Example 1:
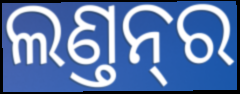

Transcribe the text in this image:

ଲଣ୍ତନ୍‌ର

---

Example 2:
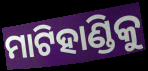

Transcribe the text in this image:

ମାଟିହାଣ୍ଡିକୁ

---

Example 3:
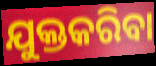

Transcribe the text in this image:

ଯୁକ୍ତକରିବା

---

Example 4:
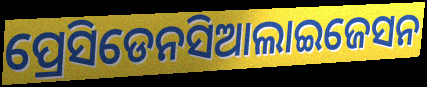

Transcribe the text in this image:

ପ୍ରେସିଡେନସିଆଲାଇଜେସନ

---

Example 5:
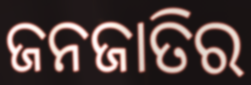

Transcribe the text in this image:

ଜନଜାତିର